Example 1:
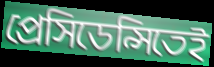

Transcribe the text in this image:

প্রেসিডেন্সিতেই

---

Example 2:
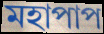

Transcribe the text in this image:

মহাপাপ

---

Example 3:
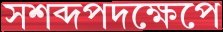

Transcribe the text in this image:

সশব্দপদক্ষেপে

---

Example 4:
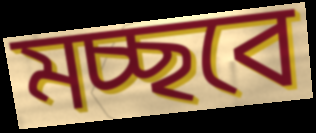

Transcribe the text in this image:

মচ্ছবে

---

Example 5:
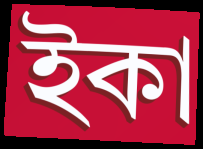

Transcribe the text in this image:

ইকা